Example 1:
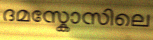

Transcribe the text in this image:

ദമസ്കോസിലെ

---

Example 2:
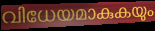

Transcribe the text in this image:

വിധേയമാകുകയും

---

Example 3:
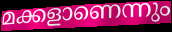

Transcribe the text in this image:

മക്കളാണെന്നും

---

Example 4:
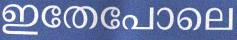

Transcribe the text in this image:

ഇതേപോലെ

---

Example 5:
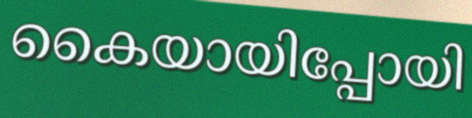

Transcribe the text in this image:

കൈയായിപ്പോയി